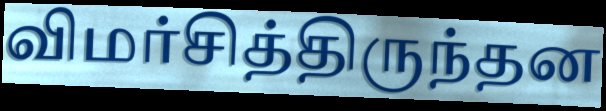
விமர்சித்திருந்தன